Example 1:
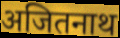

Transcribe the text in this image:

अजितनाथ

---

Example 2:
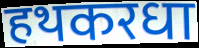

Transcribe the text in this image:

हथकरधा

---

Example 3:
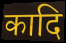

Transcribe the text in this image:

कादि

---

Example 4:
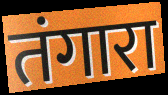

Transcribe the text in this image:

तंगारा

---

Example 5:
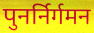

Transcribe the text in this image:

पुनर्निर्गमन